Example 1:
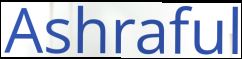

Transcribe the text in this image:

Ashraful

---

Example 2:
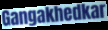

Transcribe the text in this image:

Gangakhedkar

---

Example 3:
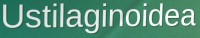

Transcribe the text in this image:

Ustilaginoidea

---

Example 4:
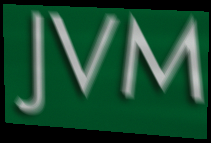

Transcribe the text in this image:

JVM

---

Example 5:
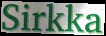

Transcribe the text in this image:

Sirkka